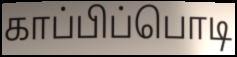
காப்பிப்பொடி